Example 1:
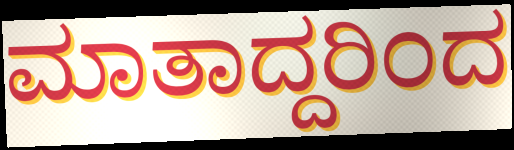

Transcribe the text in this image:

ಮಾತಾದ್ದರಿಂದ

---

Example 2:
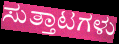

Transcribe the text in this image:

ಸುತ್ತಾಟಗಳು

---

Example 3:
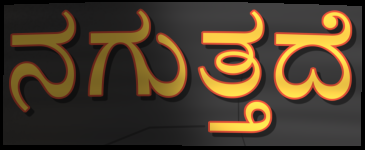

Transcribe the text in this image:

ನಗುತ್ತದೆ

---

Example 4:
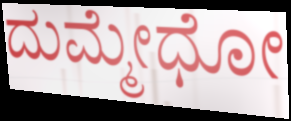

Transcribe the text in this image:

ದುಮ್ಮೇಧೋ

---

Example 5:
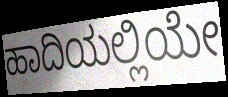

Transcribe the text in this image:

ಹಾದಿಯಲ್ಲಿಯೇ